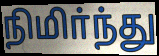
நிமிர்ந்து